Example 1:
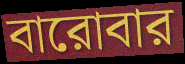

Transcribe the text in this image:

বারোবার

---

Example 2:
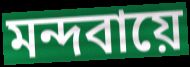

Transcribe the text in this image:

মন্দবায়ে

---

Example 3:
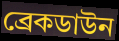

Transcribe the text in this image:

ব্রেকডাউন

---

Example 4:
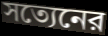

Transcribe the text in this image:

সত্যেনের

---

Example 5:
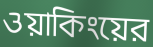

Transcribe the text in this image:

ওয়াকিংয়ের